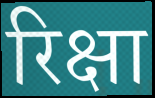
रिक्षा